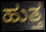
ಹುತ್ತ